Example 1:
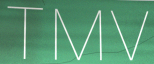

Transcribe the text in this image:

TMV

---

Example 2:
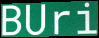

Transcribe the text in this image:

BUri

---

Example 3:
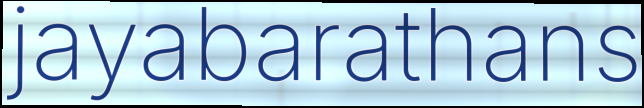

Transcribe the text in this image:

jayabarathans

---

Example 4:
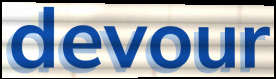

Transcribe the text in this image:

devour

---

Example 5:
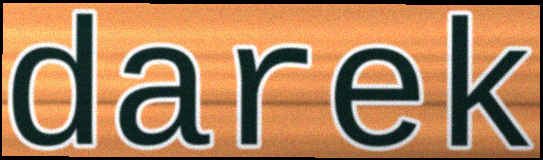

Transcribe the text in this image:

darek